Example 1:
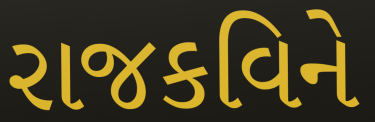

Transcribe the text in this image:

રાજકવિને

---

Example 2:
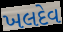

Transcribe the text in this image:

ખલદેવ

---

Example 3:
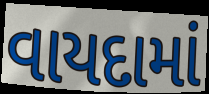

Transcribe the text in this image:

વાયદામાં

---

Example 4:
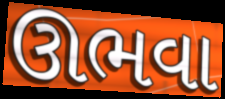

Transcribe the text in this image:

ઊભવા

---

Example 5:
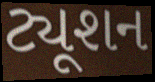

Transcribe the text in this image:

ટ્યૂશન